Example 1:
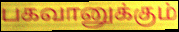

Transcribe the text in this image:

பகவானுக்கும்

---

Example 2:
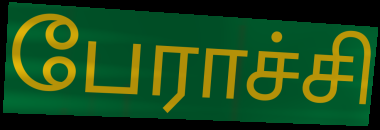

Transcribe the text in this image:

பேராச்சி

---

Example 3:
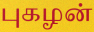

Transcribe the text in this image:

புகழன்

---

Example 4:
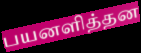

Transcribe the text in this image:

பயனளித்தன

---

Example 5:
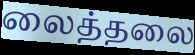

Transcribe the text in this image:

லைத்தலை